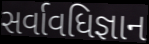
સર્વાવધિજ્ઞાન